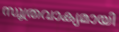
സൂത്രവാക്യമായി